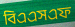
বিএএসএফ